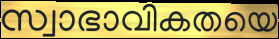
സ്വാഭാവികതയെ